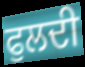
ਫੁਲਦੀ